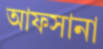
আফসানা